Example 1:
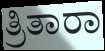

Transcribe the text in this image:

ತ್ರಿತಾರಾ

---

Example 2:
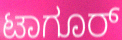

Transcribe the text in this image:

ಟಾಗೂರ್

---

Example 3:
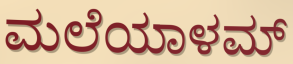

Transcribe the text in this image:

ಮಲೆಯಾಳಮ್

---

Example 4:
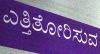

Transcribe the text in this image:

ಎತ್ತಿತೋರಿಸುವ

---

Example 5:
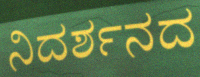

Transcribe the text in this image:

ನಿದರ್ಶನದ